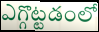
ఎగ్గొట్టడంలో